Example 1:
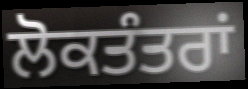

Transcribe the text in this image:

ਲੋਕਤੰਤਰਾਂ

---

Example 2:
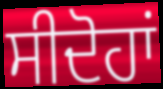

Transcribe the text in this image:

ਸੀਦੋਹਾਂ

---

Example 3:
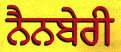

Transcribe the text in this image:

ਨੈਨਬੇਰੀ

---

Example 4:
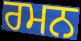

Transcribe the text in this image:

ਰਮਨ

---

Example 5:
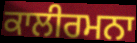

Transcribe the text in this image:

ਕਾਲੀਰਮਨਾ